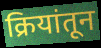
क्रियांतून